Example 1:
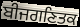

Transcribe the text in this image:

ਬੀਜਗਣਿਤਕ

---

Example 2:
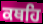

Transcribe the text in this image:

ਕਥਹਿ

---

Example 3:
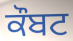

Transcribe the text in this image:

ਕੌਬਟ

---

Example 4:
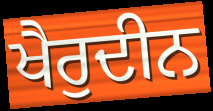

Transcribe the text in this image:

ਖੈਰੁਦੀਨ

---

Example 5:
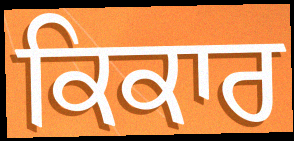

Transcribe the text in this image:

ਕਿਕਾਰ